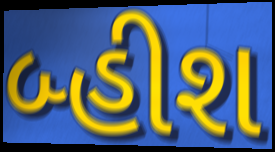
બ્હીશ